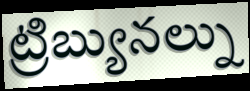
ట్రిబ్యునల్ను